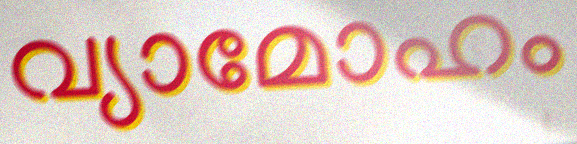
വ്യാമോഹം